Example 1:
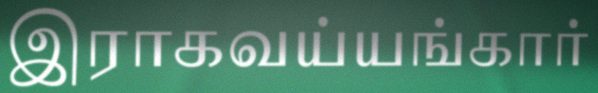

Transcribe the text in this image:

இராகவய்யங்கார்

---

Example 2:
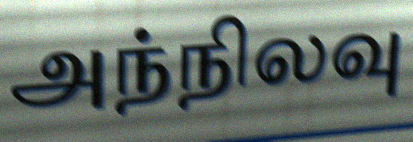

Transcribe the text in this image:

அந்நிலவு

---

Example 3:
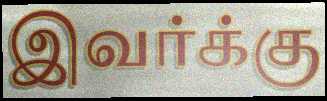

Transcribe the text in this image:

இவர்க்கு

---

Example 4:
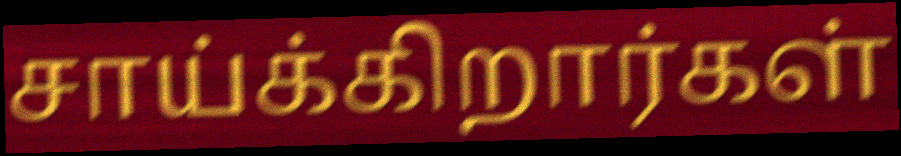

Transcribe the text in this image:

சாய்க்கிறார்கள்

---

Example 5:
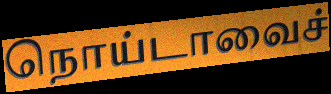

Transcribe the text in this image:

நொய்டாவைச்